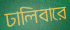
ঢালিবারে